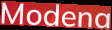
Modena